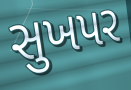
સુખપર